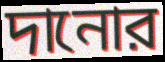
দানোর